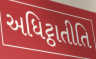
અધિટ્ઠાતીતિ